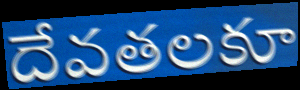
దేవతలకూ